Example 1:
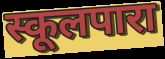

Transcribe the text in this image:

स्कूलपारा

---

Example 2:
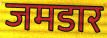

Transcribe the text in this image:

जमडार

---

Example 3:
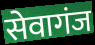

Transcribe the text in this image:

सेवागंज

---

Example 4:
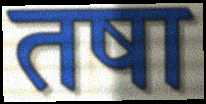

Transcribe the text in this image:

तषा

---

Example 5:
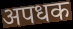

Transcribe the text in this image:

अपधक